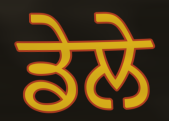
ਡੇਲੇ